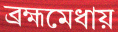
ব্রহ্মমেধায়